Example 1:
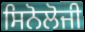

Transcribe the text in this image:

ਸਿਨੋਲੋਜੀ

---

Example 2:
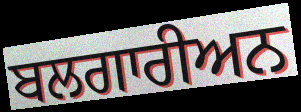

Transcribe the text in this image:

ਬਲਗਾਰੀਅਨ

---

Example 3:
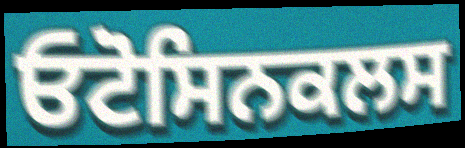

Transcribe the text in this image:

ਓਟੋਸਿਨਕਲਸ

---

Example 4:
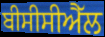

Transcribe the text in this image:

ਬੀਸੀਸੀਐੱਲ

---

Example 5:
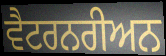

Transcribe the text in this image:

ਵੈਟਰਨਰੀਅਨ